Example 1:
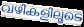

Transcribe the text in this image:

വഴികളിലൂടെ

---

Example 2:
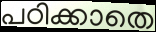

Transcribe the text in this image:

പഠിക്കാതെ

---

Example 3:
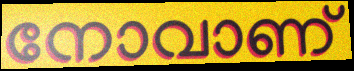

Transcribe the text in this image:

നോവാണ്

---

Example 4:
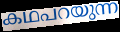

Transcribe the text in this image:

കഥപറയുന്ന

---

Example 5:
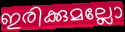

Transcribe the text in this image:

ഇരിക്കുമല്ലോ